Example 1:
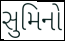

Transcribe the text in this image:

સુમિનો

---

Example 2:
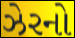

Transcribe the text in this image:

ઝેરનો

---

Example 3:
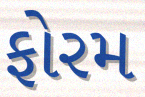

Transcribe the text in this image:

ફોરમ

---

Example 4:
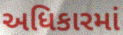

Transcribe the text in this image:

અધિકારમાં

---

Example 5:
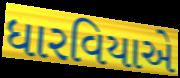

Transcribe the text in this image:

ધારવિયાએ